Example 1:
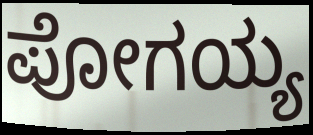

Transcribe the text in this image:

ಪೋಗಯ್ಯ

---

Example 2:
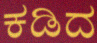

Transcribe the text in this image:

ಕಡಿದ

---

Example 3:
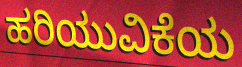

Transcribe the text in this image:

ಹರಿಯುವಿಕೆಯ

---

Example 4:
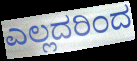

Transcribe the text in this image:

ಎಲ್ಲದರಿಂದ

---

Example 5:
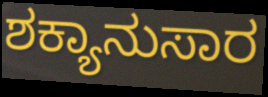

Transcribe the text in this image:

ಶಕ್ಯಾನುಸಾರ